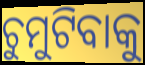
ଚୁମୁଟିବାକୁ